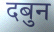
दबुन